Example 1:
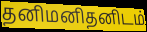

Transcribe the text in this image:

தனிமனிதனிடம்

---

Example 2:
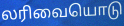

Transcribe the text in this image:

லரிவையொடு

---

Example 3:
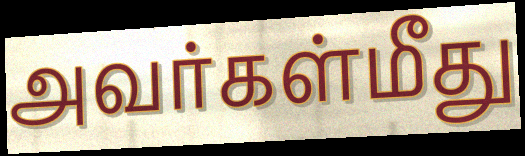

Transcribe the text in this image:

அவர்கள்மீது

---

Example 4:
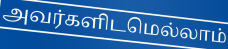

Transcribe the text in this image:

அவர்களிடமெல்லாம்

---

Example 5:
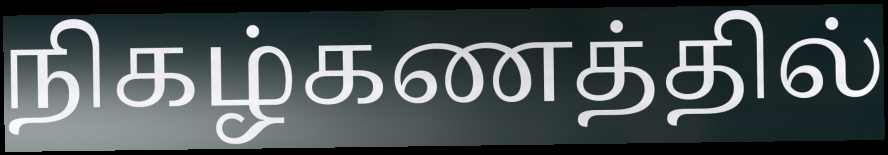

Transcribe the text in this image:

நிகழ்கணத்தில்